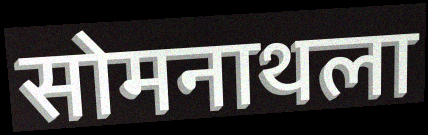
सोमनाथला